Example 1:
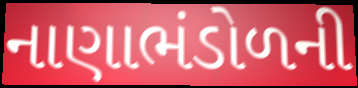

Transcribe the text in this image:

નાણાભંડોળની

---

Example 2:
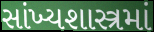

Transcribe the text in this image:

સાંખ્યશાસ્ત્રમાં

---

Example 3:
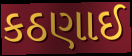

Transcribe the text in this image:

કઠણાઈ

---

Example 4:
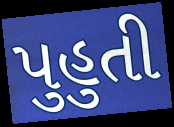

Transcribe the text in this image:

પુહુતી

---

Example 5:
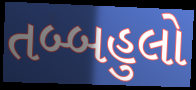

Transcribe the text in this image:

તબ્બહુલો